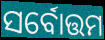
ସର୍ବୋତ୍ତମ